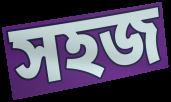
সহজ